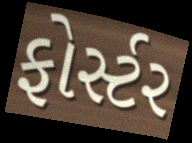
ફોર્સ્ટર